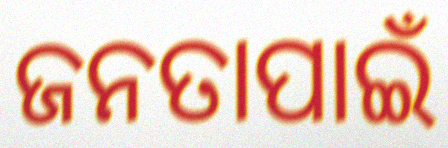
ଜନତାପାଇଁ